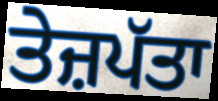
ਤੇਜ਼ਪੱਤਾ